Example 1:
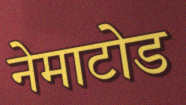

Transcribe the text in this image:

नेमाटोड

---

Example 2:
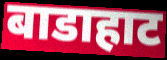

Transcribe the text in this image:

बाडाहाट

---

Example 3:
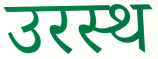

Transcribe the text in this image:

उरस्थ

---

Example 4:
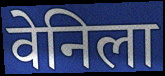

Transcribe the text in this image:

वेनिला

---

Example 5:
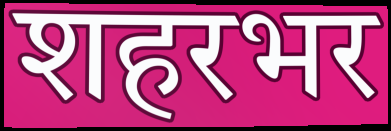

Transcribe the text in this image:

शहरभर